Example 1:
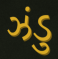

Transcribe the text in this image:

ઝંડુ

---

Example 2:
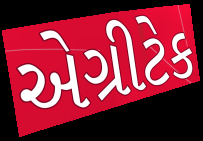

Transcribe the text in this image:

એગ્રીટેક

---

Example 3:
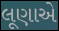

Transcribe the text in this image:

લૂણાએ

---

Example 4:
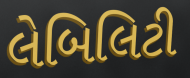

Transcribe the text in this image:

લેબિલિટી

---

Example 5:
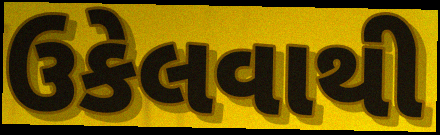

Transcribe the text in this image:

ઉકેલવાથી